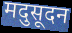
मदुसूदन